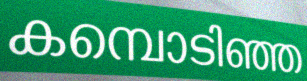
കമ്പൊടിഞ്ഞ